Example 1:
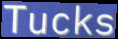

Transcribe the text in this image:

Tucks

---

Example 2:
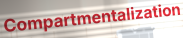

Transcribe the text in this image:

Compartmentalization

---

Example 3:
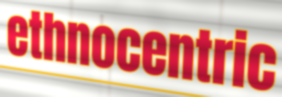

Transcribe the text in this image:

ethnocentric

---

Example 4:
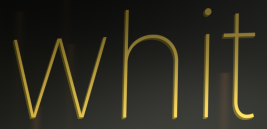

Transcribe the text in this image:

whit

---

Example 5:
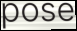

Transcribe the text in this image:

pose